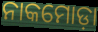
ନାକମୋଡ଼ା